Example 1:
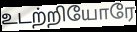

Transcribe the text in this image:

உடற்றியோரே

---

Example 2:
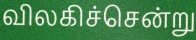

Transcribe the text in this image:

விலகிச்சென்று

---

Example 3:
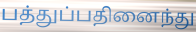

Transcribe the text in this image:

பத்துப்பதினைந்து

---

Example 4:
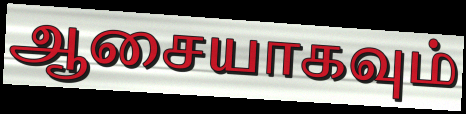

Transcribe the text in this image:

ஆசையாகவும்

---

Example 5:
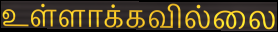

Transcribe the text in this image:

உள்ளாக்கவில்லை